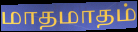
மாதமாதம்